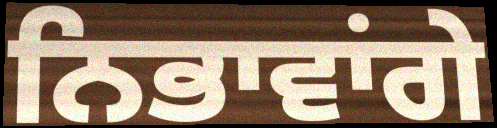
ਨਿਭਾਵਾਂਗੇ